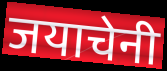
जयाचेनी